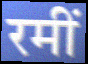
रमीं